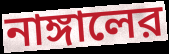
নাঙ্গালের